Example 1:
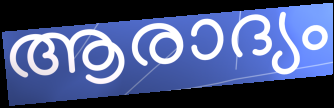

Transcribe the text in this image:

ആരാദ്യം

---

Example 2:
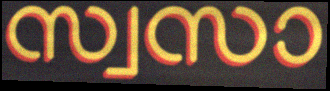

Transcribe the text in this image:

സ്വസാ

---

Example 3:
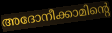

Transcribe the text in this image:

അദോനീക്കാമിന്റെ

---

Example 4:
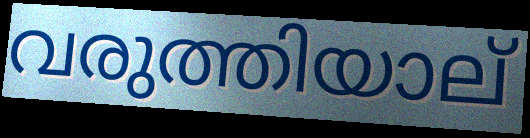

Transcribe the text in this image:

വരുത്തിയാല്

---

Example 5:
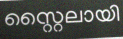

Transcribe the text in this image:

സ്റ്റൈലായി